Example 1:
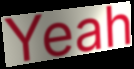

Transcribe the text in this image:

Yeah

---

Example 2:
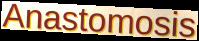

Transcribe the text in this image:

Anastomosis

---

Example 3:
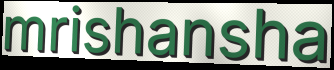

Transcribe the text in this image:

mrishansha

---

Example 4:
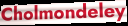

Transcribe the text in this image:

Cholmondeley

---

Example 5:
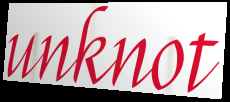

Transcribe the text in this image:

unknot